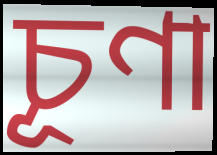
চূণা